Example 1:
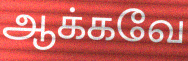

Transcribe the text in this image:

ஆக்கவே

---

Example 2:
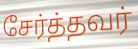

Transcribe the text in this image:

சேர்த்தவர்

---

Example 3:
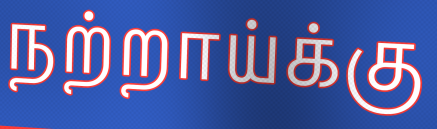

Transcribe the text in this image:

நற்றாய்க்கு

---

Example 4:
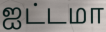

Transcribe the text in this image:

ஐட்டமா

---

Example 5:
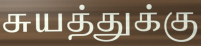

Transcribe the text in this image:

சுயத்துக்கு